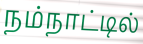
நம்நாட்டில்